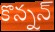
కొన్నన్